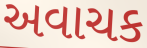
અવાચક